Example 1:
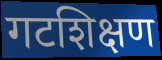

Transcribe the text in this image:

गटशिक्षण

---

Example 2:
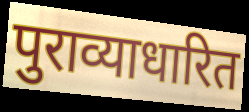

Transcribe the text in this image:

पुराव्याधारित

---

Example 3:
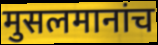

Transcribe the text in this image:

मुसलमानांच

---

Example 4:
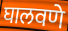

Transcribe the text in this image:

घालवणे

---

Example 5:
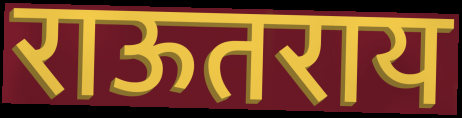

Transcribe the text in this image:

राऊतराय